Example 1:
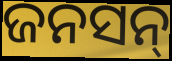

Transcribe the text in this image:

ଜନସନ୍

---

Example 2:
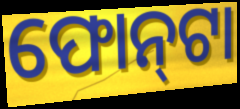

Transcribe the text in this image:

ଫୋନ୍‍ଟା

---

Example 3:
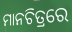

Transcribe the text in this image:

ମାନଚିତ୍ରରେ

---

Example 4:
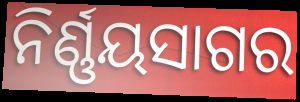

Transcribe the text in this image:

ନିର୍ଣ୍ଣୟସାଗର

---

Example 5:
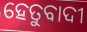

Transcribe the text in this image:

ହେତୁବାଦୀ